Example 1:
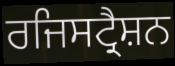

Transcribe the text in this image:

ਰਜਿਸਟ੍ਰੈਸ਼ਨ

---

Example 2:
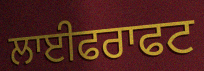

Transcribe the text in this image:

ਲਾਈਫਰਾਫਟ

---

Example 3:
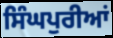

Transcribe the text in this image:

ਸਿੰਘਪੁਰੀਆਂ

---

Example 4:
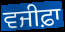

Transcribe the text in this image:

ਵਜੀਫ਼ਾ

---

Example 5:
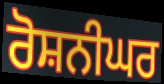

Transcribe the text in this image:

ਰੋਸ਼ਨੀਘਰ